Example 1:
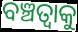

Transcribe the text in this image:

ବଞ୍ଚତ୍ବାକୁ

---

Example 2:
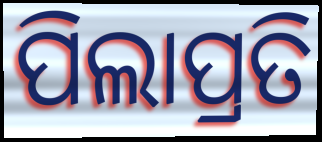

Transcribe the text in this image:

ପିଲାପ୍ରତି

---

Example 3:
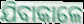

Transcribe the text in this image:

ଯିବାକାଳେ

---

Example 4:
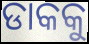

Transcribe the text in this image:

ଡାକକୁ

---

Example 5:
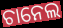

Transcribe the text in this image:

ଚାନେଲ